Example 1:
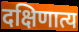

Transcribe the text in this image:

दक्षिणात्य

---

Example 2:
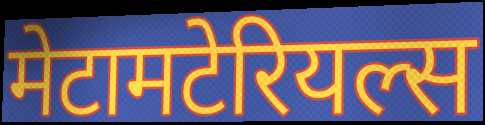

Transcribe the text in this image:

मेटामटेरियल्स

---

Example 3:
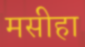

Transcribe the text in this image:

मसीहा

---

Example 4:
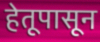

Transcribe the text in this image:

हेतूपासून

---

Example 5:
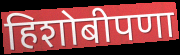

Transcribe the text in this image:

हिशोबीपणा